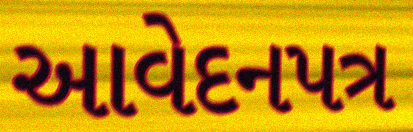
આવેદનપત્ર